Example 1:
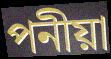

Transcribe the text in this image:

পনীয়া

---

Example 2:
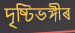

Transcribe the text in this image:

দৃষ্টিভঙ্গীৰ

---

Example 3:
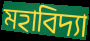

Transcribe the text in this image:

মহাবিদ্যা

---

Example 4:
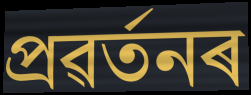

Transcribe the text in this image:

প্ৰৱৰ্তনৰ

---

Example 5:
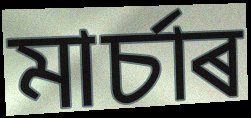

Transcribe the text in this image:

মাৰ্চাৰ